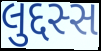
લુદ્દસ્સ